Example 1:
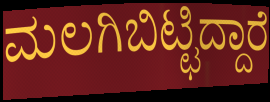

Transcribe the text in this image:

ಮಲಗಿಬಿಟ್ಟಿದ್ದಾರೆ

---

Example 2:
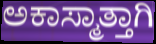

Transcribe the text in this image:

ಅಕಾಸ್ಮಾತ್ತಾಗಿ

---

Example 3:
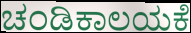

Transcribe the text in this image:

ಚಂಡಿಕಾಲಯಕೆ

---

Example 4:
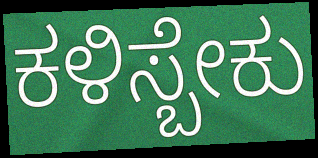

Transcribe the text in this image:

ಕಳಿಸ್ಬೇಕು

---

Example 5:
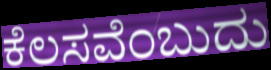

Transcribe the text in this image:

ಕೆಲಸವೆಂಬುದು